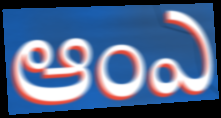
ఆంఎ